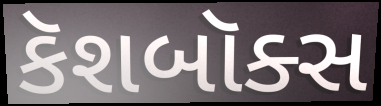
કૅશબૉક્સ